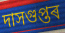
দাসগুপ্তৰ